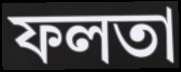
ফলতা